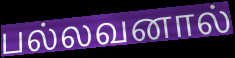
பல்லவனால்